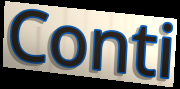
Conti